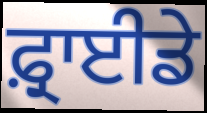
ਫ਼੍ਰਾਈਡੇ